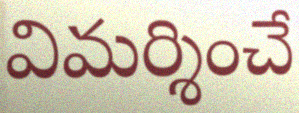
విమర్శించే